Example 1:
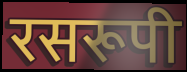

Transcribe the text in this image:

रसरूपी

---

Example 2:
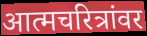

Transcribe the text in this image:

आत्मचरित्रांवर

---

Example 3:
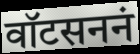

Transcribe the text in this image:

वॉटसननं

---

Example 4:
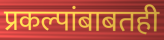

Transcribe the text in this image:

प्रकल्पांबाबतही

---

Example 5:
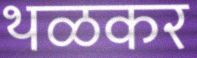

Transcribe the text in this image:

थळकर